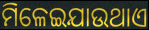
ମିଳେଇଯାଉଥାଏ